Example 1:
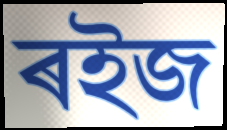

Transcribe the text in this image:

ৰইজ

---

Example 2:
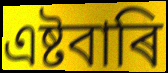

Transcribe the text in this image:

এষ্টবাৰি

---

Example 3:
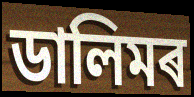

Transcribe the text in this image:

ডালিমৰ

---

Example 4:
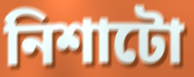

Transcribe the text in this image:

নিশাটো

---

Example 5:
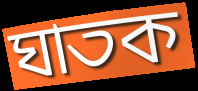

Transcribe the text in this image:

ঘাতক